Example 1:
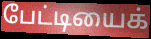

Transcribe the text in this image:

பேட்டியைக்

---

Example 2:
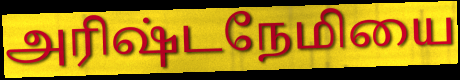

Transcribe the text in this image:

அரிஷ்டநேமியை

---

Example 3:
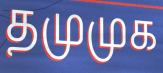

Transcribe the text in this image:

தமுமுக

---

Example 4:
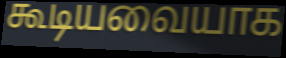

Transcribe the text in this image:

கூடியவையாக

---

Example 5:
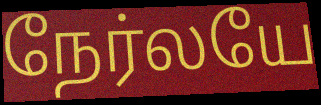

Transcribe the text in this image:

நேர்லயே